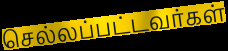
செல்லப்பட்டவர்கள்